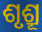
ଶୃଶ୍ରୂ